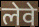
लेवे